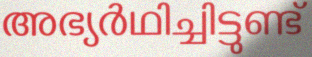
അഭ്യർഥിച്ചിട്ടുണ്ട്